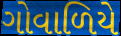
ગોવાળિયે